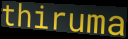
thiruma